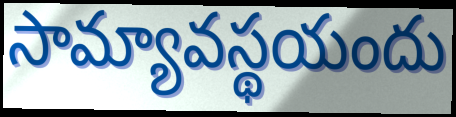
సామ్యావస్థయందు